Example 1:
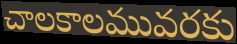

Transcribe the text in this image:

చాలకాలమువరకు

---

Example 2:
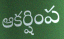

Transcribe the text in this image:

ఆకర్షింప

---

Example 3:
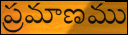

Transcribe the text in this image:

ప్రమాణము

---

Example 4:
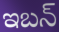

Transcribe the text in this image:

ఇబన్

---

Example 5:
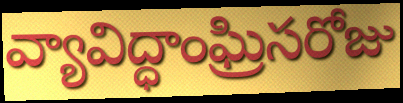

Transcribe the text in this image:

వ్యావిద్ధాంఘ్రిసరోజు